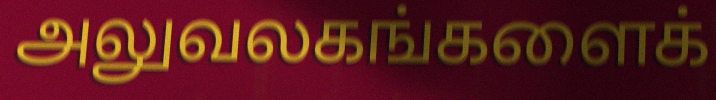
அலுவலகங்களைக்